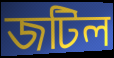
জটিল